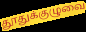
தூதுக்குழுவை